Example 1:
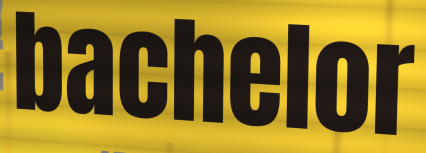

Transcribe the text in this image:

bachelor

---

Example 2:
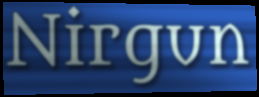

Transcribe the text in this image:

Nirgun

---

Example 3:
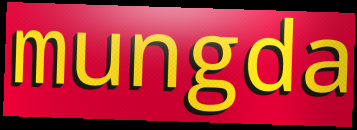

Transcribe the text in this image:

mungda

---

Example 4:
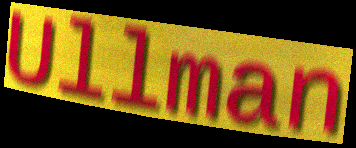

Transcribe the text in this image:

Ullman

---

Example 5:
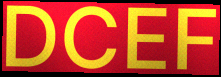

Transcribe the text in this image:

DCEF